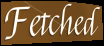
Fetched